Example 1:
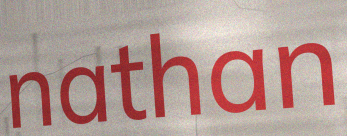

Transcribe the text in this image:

nathan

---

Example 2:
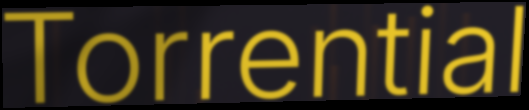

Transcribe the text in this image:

Torrential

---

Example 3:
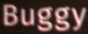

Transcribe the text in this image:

Buggy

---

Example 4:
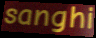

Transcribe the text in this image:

sanghi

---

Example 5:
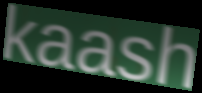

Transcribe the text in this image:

kaash